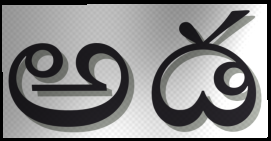
అడ